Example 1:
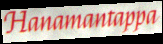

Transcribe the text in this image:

Hanamantappa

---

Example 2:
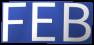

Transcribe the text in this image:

FEB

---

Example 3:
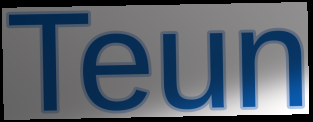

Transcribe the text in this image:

Teun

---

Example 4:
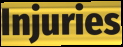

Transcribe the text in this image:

Injuries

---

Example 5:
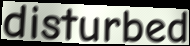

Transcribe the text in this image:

disturbed